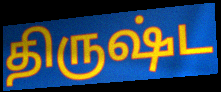
திருஷ்ட